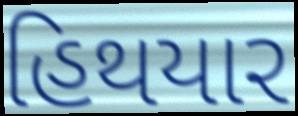
હિથયાર